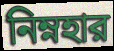
নিম্নহার